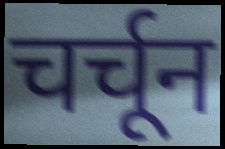
चर्चून